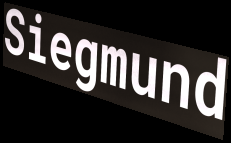
Siegmund